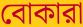
বোকারা